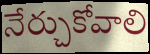
నేర్చుకోవాలి